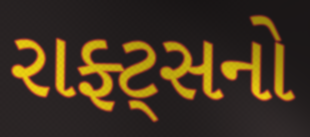
રાફ્ટ્સનો